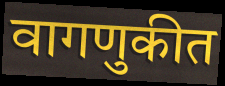
वागणुकीत